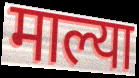
माल्या